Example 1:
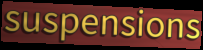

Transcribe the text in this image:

suspensions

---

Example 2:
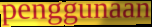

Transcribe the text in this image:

penggunaan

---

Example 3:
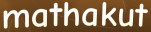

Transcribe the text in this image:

mathakut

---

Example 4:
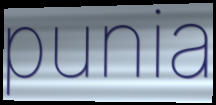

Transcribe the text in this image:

punia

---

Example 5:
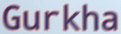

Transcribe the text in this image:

Gurkha